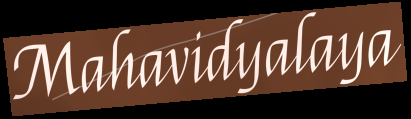
Mahavidyalaya